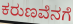
ಕರುಣವೆನಗೆ